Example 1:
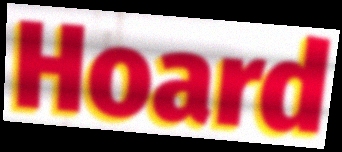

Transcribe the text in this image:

Hoard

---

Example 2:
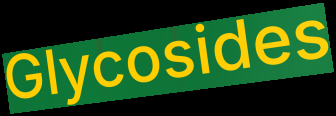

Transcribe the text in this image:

Glycosides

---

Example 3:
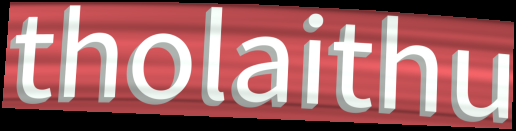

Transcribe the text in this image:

tholaithu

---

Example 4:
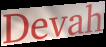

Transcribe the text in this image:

Devah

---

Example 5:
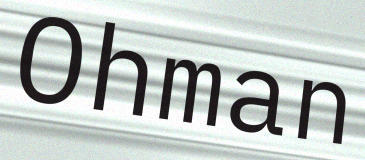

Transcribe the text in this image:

Ohman